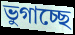
ভুগাচ্ছে